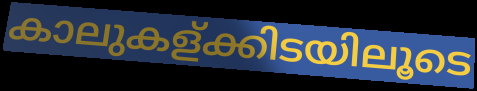
കാലുകള്ക്കിടയിലൂടെ